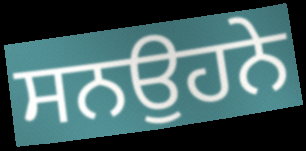
ਸਨਉਹਨੇ